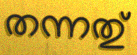
തന്നതു്